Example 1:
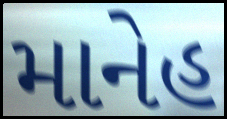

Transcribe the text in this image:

માનેહ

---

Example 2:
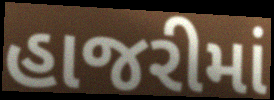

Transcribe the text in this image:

હાજરીમાં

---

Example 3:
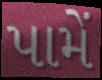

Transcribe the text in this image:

પામેં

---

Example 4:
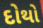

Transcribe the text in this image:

દોથો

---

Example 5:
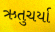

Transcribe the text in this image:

ઋતુચર્યા